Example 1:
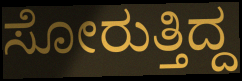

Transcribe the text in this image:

ಸೋರುತ್ತಿದ್ದ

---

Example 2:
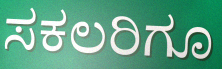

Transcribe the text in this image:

ಸಕಲರಿಗೂ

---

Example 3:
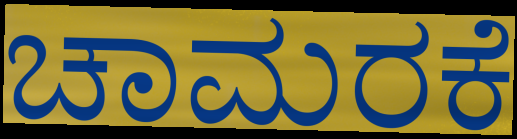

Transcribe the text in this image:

ಚಾಮರಕೆ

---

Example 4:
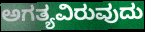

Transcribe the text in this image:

ಅಗತ್ಯವಿರುವುದು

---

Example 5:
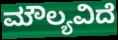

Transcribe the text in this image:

ಮೌಲ್ಯವಿದೆ